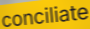
conciliate